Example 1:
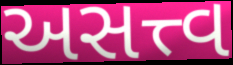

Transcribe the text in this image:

અસત્ત્વ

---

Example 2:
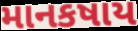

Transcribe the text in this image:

માનકષાય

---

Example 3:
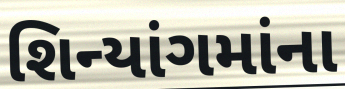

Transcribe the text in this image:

શિન્યાંગમાંના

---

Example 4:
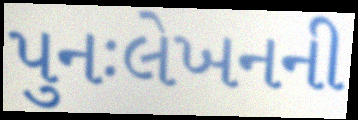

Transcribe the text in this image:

પુનઃલેખનની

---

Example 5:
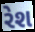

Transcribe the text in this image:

રેશ